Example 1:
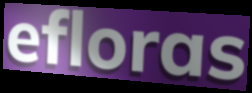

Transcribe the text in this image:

efloras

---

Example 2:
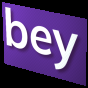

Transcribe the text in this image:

bey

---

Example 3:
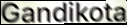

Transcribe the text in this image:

Gandikota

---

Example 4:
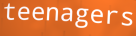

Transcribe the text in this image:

teenagers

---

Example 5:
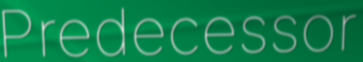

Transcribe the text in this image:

Predecessor